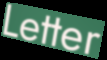
Letter